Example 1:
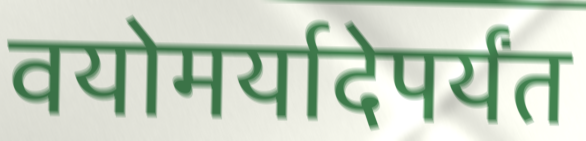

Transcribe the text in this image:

वयोमर्यादेपर्यंत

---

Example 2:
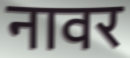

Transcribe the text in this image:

नावर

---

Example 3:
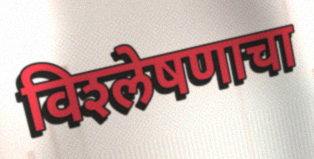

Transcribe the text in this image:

विश्‍लेषणाचा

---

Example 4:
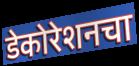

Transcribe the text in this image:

डेकोरेशनचा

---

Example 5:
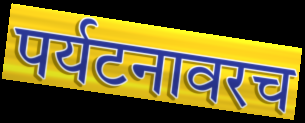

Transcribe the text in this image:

पर्यटनावरच